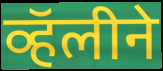
व्हॅलीने